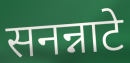
सनन्नाटे